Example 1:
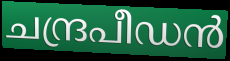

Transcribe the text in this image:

ചന്ദ്രപീഡൻ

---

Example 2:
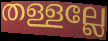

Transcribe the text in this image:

തള്ളല്ലേ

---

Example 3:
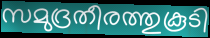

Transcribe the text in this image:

സമുദ്രതീരത്തുകൂടി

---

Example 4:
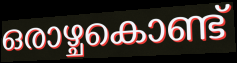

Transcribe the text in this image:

ഒരാഴ്ചകൊണ്ട്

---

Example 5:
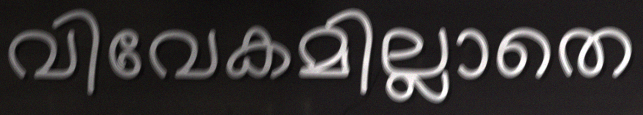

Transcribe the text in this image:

വിവേകമില്ലാതെ